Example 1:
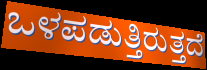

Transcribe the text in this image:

ಒಳಪಡುತ್ತಿರುತ್ತದೆ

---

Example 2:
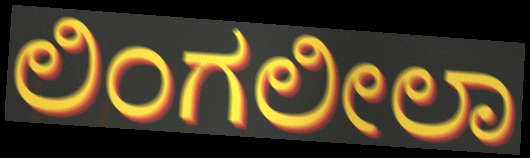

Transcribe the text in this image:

ಲಿಂಗಲೀಲಾ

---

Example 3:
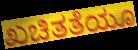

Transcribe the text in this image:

ಖಚಿತತೆಯೂ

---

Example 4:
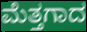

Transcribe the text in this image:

ಮೆತ್ತಗಾದ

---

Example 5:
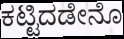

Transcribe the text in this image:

ಕಟ್ಟಿದಡೇನೊ